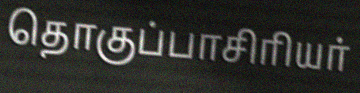
தொகுப்பாசிரியர்